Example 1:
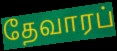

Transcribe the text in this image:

தேவாரப்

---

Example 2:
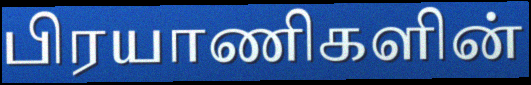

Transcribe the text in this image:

பிரயாணிகளின்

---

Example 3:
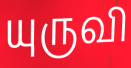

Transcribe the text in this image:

யுருவி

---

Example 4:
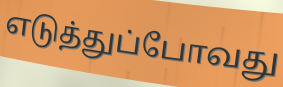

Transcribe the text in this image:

எடுத்துப்போவது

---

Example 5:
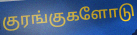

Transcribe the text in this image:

குரங்குகளோடு